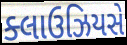
ક્લાઉઝિયસે